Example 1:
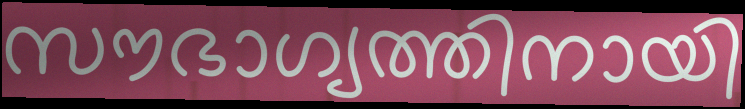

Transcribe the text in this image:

സൗഭാഗ്യത്തിനായി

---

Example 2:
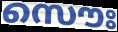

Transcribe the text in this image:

സൌഃ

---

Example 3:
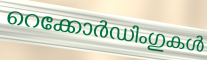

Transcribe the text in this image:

റെക്കോർഡിംഗുകൾ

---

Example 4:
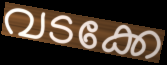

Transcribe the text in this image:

വടക്കേ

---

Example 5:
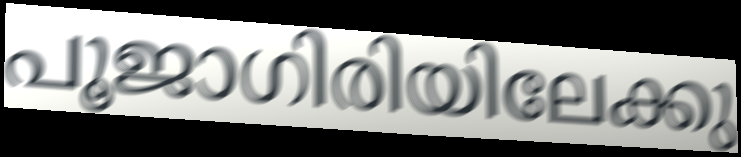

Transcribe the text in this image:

പൂജാഗിരിയിലേക്കു